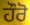
ਹੌਰੋ